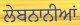
ਲੇਬਨਾਨੀਆਂ